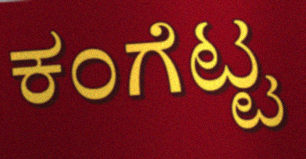
ಕಂಗೆಟ್ಟ